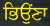
ਭਿਉਂਣਾ